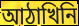
আঠাখিনি